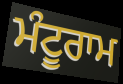
ਮੰਟੂਰਾਮ